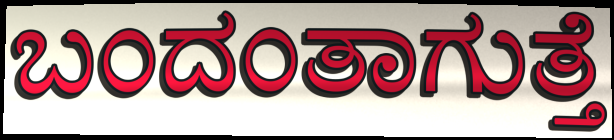
ಬಂದಂತಾಗುತ್ತೆ